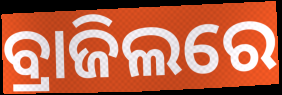
ବ୍ରାଜିଲରେ